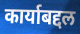
कार्याबद्दल